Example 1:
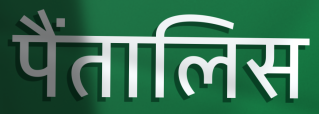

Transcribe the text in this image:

पैंतालिस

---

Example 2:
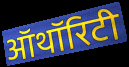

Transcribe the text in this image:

ऑथॉरिटी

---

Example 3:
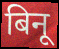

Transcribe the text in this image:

बिनू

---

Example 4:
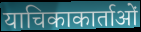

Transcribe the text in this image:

याचिकाकार्ताओं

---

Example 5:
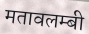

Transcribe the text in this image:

मतावलम्बी